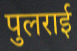
पुलराई